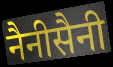
नैनीसैनी